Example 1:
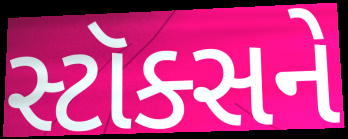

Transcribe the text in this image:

સ્ટૉક્સને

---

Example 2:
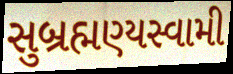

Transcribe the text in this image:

સુબ્રહ્મણ્યસ્વામી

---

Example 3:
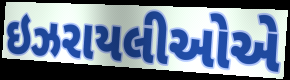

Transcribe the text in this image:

ઇઝરાયલીઓએ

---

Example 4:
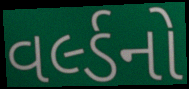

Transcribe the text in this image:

વર્લ્ડનો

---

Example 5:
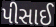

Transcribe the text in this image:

પીસાઈ